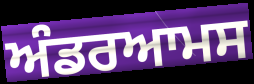
ਅੰਡਰਆਮਸ